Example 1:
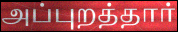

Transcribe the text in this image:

அப்புறத்தார்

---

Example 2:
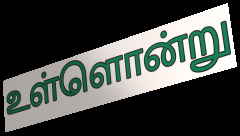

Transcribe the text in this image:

உள்ளொன்று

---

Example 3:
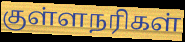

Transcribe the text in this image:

குள்ளநரிகள்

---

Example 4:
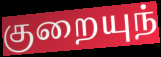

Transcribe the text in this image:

குறையுந்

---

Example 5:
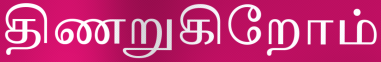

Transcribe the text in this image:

திணறுகிறோம்